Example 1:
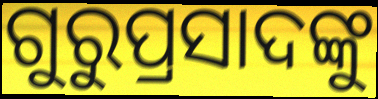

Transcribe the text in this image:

ଗୁରୁପ୍ରସାଦଙ୍କୁ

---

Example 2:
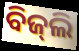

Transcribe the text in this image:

ବିଜ୍‍ଲି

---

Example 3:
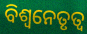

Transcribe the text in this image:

ବିଶ୍ୱନେତୃତ୍ୱ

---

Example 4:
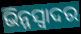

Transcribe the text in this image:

ଭିନ୍ନସ୍ବାଦର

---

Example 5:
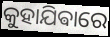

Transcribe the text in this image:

କୁହାଯିଵାରେ